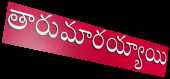
తారుమారయ్యాయి